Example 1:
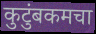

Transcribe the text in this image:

कुटुंबकमचा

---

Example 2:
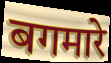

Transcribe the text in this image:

बगमारे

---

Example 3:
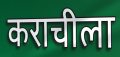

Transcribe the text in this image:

कराचीला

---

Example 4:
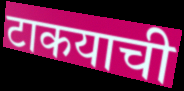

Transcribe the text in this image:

टाकयाची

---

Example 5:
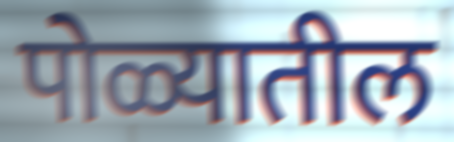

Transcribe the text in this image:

पोळ्यातील